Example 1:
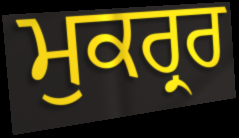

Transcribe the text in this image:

ਮੁਕਰ੍ਰਰ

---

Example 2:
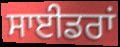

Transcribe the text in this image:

ਸਾਈਡਰਾਂ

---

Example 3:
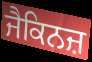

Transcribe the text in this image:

ਜੈਕਿਨਜ਼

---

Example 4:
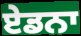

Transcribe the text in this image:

ਏਡਨਾ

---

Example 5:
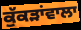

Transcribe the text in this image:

ਕੁੱਕੜਾਂਵਾਲਾ